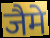
जैमे